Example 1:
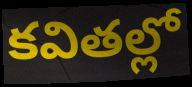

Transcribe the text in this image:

కవితల్లో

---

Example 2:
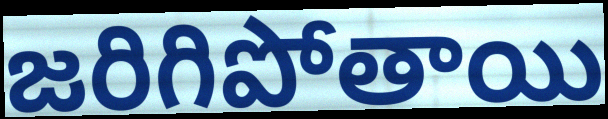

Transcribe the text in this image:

జరిగిపోతాయి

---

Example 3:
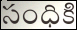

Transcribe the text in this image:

సంధికి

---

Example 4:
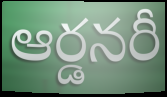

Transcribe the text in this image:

ఆర్డనరీ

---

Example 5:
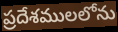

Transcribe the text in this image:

ప్రదేశములలోను